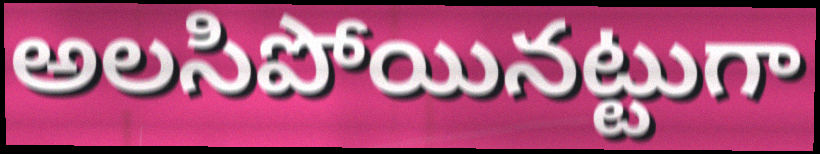
అలసిపోయినట్టుగా